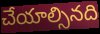
చేయాల్సినది